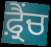
ਫ਼੍ਰੈਂਚ